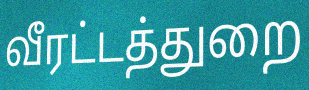
வீரட்டத்துறை